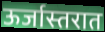
ऊर्जास्तरात